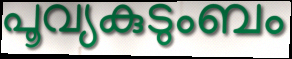
പൂവ്യകുടുംബം